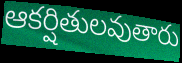
ఆకర్షితులవుతారు